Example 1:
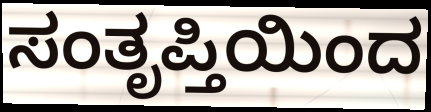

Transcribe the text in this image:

ಸಂತೃಪ್ತಿಯಿಂದ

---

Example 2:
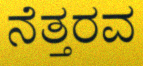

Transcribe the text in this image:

ನೆತ್ತರವ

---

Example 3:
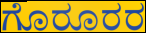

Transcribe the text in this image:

ಗೊರೂರರ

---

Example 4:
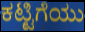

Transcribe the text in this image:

ಕಟ್ಟಿಗೆಯು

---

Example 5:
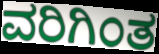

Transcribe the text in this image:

ವರಿಗಿಂತ